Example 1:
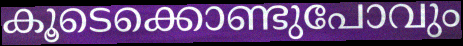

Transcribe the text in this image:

കൂടെക്കൊണ്ടുപോവും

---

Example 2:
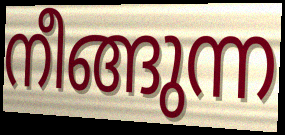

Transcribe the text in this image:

നീങ്ങുന്ന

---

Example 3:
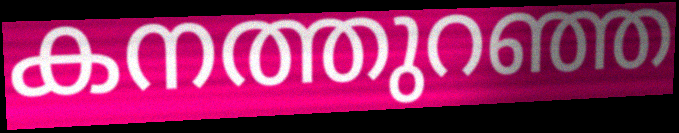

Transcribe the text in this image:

കനത്തുറഞ്ഞ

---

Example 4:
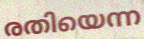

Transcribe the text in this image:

രതിയെന്ന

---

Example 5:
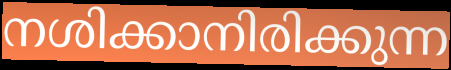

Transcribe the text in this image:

നശിക്കാനിരിക്കുന്ന